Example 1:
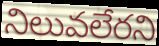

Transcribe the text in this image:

నిలువలేరని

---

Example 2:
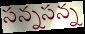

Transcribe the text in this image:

సన్నసన్న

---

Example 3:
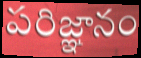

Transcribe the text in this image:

పరిజ్ఞానం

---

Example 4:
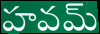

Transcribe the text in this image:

హవమ్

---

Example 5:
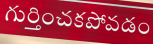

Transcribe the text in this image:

గుర్తించకపోవడం